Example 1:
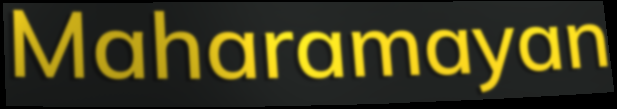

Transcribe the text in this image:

Maharamayan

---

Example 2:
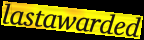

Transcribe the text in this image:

lastawarded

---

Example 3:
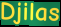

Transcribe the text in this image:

Djilas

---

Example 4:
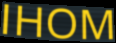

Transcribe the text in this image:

IHOM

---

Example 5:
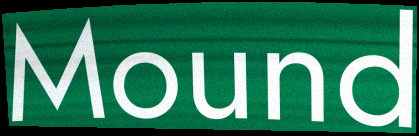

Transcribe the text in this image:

Mound